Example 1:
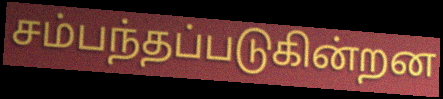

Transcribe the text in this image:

சம்பந்தப்படுகின்றன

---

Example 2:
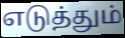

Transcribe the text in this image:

எடுத்தும்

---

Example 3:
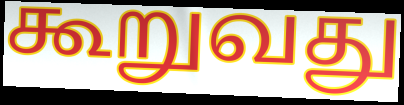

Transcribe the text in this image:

கூறுவது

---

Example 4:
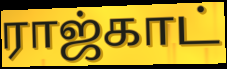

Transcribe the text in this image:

ராஜ்காட்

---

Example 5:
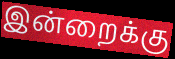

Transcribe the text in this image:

இன்றைக்கு